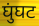
घुंघट